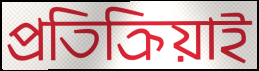
প্ৰতিক্ৰিয়াই